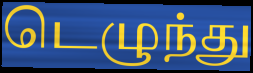
டெழுந்து